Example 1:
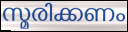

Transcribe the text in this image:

സ്മരിക്കണം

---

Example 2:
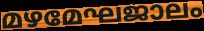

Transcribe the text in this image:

മഴമേഘജാലം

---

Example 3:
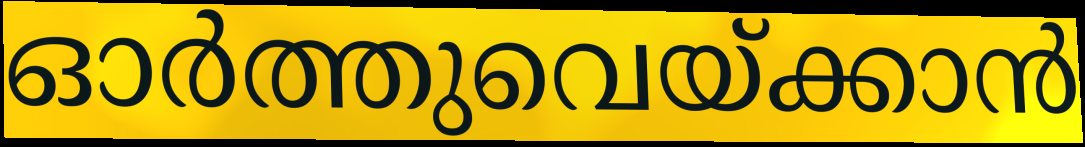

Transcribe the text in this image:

ഓർത്തുവെയ്ക്കാൻ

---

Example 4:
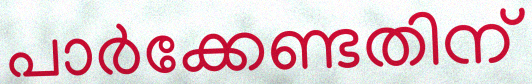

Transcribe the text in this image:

പാർക്കേണ്ടതിന്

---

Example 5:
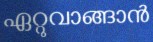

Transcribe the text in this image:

ഏറ്റുവാങ്ങാൻ